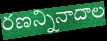
రణన్నినాదాల